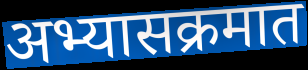
अभ्यासक्रमात